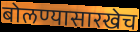
बोलण्यासारखेच